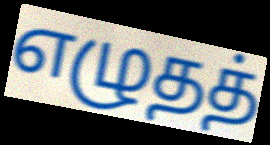
எழுதத்